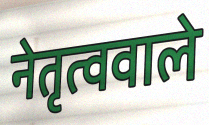
नेतृत्ववाले